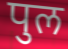
पुल